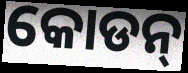
କୋଡନ୍